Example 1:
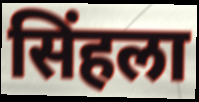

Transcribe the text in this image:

सिंहला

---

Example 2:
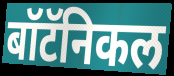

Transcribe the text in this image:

बॉटॅनिकल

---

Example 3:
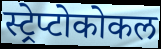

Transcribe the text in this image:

स्ट्रेप्टोकोकल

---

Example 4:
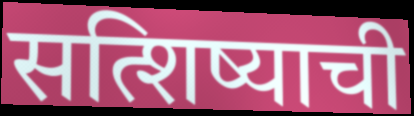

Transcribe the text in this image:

सत्शिष्याची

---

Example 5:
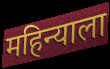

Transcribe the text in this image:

महिन्याला